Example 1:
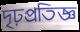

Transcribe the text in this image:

দৃঢ়প্রতিজ্ঞ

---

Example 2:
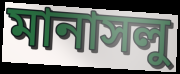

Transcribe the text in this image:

মানাসলু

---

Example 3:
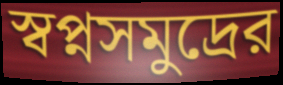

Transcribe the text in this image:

স্বপ্নসমুদ্রের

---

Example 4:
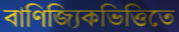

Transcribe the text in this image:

বাণিজ্যিকভিত্তিতে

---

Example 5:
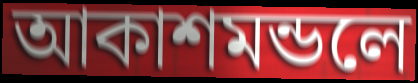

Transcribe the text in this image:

আকাশমন্ডলে